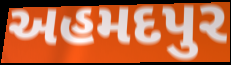
અહમદપુર